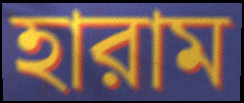
হারাম